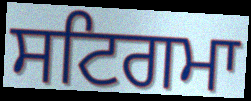
ਸਟਿਗਮਾ